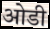
ओडी